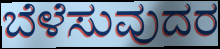
ಬೆಳೆಸುವುದರ